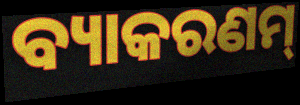
ବ୍ୟାକରଣମ୍